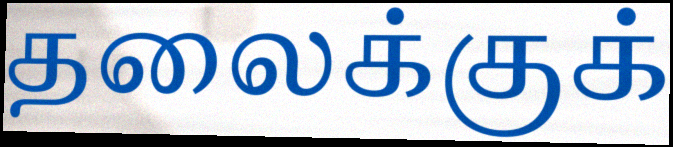
தலைக்குக்